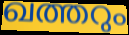
ഖത്തറും